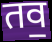
तव॒